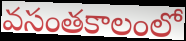
వసంతకాలంలో